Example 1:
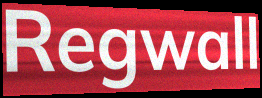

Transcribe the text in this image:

Regwall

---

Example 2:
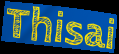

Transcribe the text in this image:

Thisai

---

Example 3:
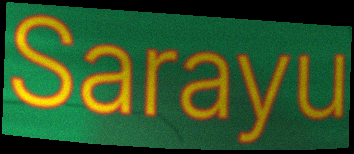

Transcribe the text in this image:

Sarayu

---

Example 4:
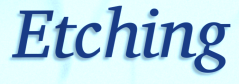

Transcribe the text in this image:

Etching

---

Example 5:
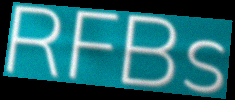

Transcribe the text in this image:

RFBs